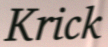
Krick